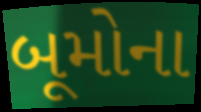
બૂમોના